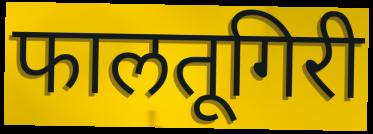
फालतूगिरी